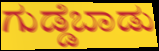
ಗುಡ್ಡೆಬಾಡು